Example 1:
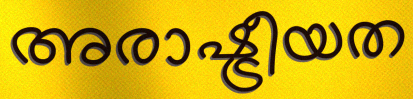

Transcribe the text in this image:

അരാഷ്ട്രീയത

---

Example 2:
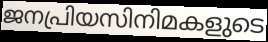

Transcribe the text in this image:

ജനപ്രിയസിനിമകളുടെ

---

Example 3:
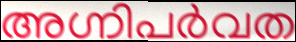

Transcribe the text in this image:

അഗ്നിപർവത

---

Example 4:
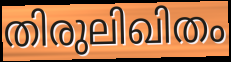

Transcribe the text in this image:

തിരുലിഖിതം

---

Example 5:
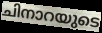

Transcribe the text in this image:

ചിനാറയുടെ